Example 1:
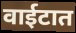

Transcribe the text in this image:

वाईटात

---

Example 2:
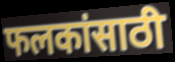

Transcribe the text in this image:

फलकांसाठी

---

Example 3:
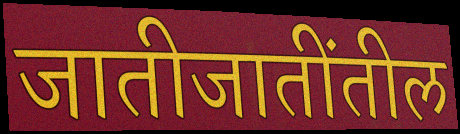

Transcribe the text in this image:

जातीजातींतील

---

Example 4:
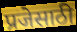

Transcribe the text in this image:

प्रजेसाठी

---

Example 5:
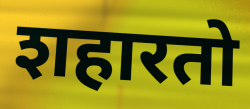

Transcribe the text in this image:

शहारतो